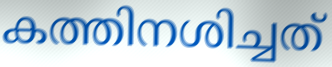
കത്തിനശിച്ചത്